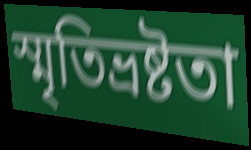
স্মৃতিভ্রষ্টতা